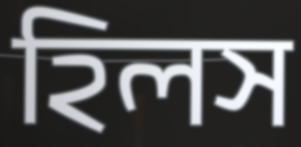
হিলস